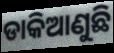
ଡାକିଆଣୁଛି